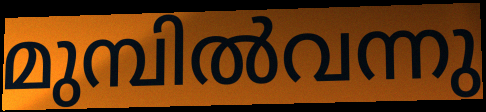
മുമ്പിൽവന്നു